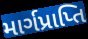
માર્ગપ્રાપ્તિ